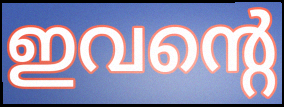
ഇവന്റെ